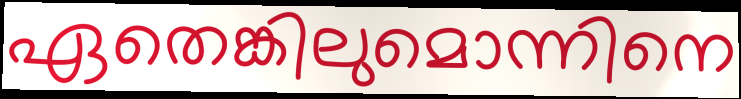
ഏതെങ്കിലുമൊന്നിനെ